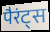
पैरंट्स